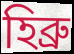
হিব্ৰু